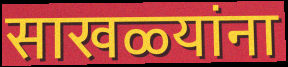
साखळ्यांना